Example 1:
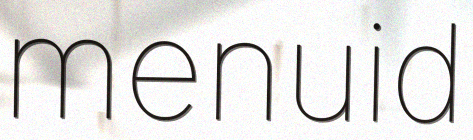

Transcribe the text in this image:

menuid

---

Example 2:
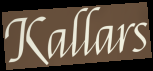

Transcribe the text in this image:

Kallars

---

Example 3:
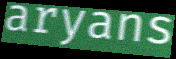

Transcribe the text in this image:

aryans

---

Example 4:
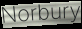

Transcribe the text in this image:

Norbury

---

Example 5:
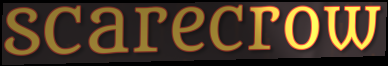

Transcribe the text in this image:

scarecrow